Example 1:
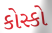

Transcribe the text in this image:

કોસ્કો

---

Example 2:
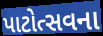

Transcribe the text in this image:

પાટોત્સવના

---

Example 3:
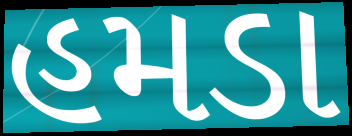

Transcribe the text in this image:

હમડા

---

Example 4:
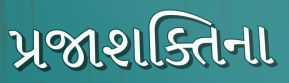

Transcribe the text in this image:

પ્રજાશક્તિના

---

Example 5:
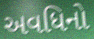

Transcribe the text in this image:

અવધિનો